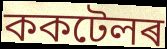
ককটেলৰ